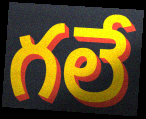
గలే